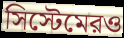
সিস্টেমেরও